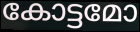
കോട്ടമോ